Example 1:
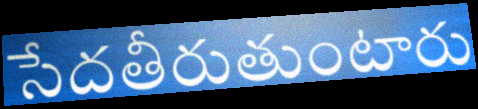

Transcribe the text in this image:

సేదతీరుతుంటారు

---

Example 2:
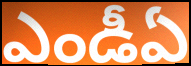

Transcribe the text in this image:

ఎండీఏ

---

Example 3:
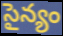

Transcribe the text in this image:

సైన్యం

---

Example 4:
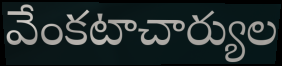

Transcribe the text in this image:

వేంకటాచార్యుల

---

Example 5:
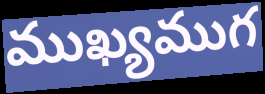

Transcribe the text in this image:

ముఖ్యముగ